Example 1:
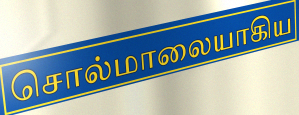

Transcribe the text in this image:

சொல்மாலையாகிய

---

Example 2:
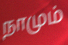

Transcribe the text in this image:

நாமும்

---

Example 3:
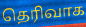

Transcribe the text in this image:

தெரிவாக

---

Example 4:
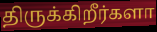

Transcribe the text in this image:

திருக்கிறீர்களா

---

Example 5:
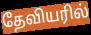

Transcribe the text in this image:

தேவியரில்